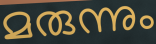
മരുന്നും